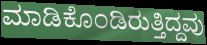
ಮಾಡಿಕೊಂಡಿರುತ್ತಿದ್ದವು